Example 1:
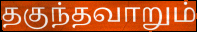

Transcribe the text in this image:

தகுந்தவாறும்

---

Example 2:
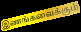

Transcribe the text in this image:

இணங்கவைக்கும்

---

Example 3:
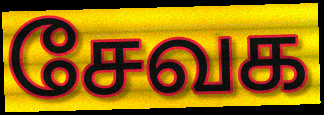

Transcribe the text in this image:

சேவக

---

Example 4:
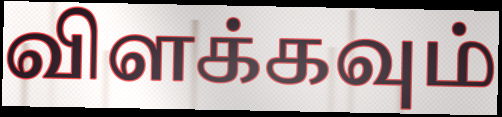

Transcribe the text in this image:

விளக்கவும்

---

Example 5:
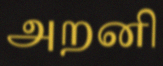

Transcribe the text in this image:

அறனி